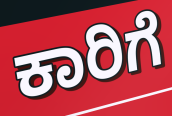
ಕಾರಿಗೆ